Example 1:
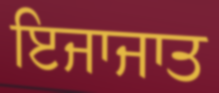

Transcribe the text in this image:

ਇਜਾਜਾਤ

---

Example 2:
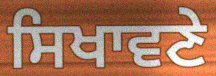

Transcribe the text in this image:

ਸਿਖਾਵਣੇ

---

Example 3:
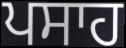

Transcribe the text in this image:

ਪਸਾਹ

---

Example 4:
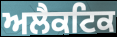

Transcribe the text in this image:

ਅਲੈਕਟਿਕ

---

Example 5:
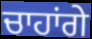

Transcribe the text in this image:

ਚਾਹਾਂਗੇ